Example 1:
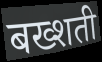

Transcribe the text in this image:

बख्शती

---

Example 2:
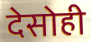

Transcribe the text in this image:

देसोही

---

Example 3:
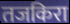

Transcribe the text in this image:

तजकिरा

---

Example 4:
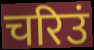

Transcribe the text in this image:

चरिउं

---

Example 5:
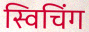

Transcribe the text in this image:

स्विचिंग